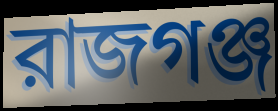
রাজগঞ্জ